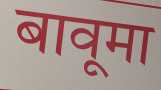
बावूमा